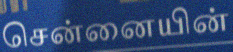
சென்னையின்